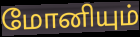
மோனியும்